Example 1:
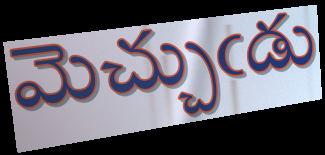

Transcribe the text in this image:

మెచ్చుఁడు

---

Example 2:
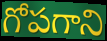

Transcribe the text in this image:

గోపగాని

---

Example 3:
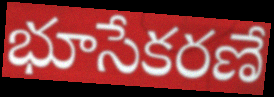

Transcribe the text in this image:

భూసేకరణే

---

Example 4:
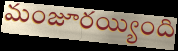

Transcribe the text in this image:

మంజూరయ్యింది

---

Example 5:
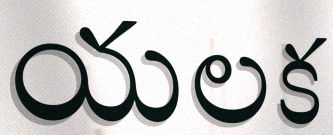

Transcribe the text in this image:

యలక